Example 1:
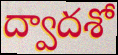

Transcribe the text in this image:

ద్వాదశో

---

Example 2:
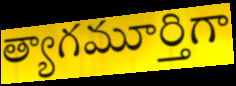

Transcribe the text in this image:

త్యాగమూర్తిగా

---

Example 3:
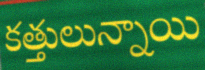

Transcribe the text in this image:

కత్తులున్నాయి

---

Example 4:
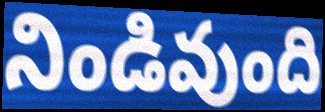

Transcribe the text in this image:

నిండివుంది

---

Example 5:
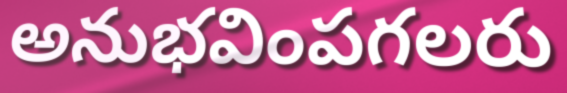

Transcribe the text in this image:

అనుభవింపగలరు